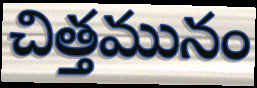
చిత్తమునం